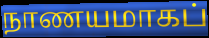
நாணயமாகப்